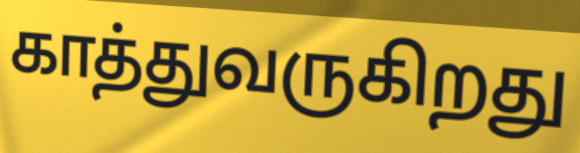
காத்துவருகிறது